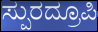
ಸ್ಪುರದ್ರೂಪಿ